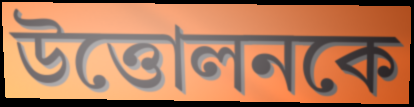
উত্তোলনকে